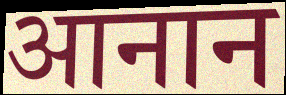
आनान